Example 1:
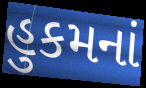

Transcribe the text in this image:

હુકમનાં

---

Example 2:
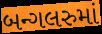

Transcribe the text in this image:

બન્ગલરુમાં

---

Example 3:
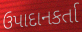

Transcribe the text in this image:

ઉપાદાનકર્તા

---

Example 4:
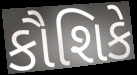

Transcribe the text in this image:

કૌશિકે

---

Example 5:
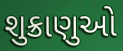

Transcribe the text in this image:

શુક્રાણુઓ